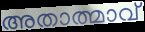
അതാത്മാവ്